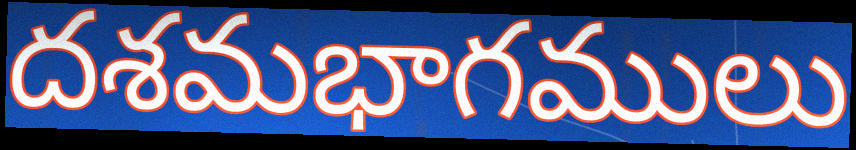
దశమభాగములు